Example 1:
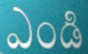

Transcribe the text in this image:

ఎండి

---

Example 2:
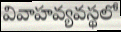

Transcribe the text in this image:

వివాహవ్యవస్థలో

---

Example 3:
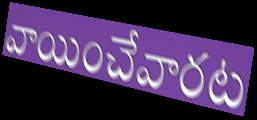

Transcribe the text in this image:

వాయించేవారట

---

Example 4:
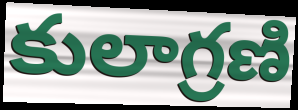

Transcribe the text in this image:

కులాగ్రణి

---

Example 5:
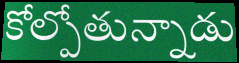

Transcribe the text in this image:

కోల్పోతున్నాడు